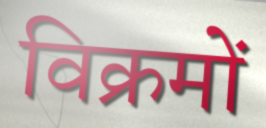
विक्रमों